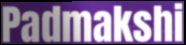
Padmakshi